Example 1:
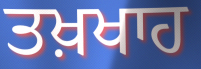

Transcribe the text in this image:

ਤਖ਼ਖਾਹ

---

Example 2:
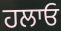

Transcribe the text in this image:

ਹਲਾਓ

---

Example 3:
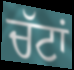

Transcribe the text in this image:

ਚੱਟਾਂ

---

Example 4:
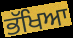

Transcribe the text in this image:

ਭੱਖਿਆ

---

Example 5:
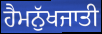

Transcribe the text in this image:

ਹੈਮਨੁੱਖਜਾਤੀ